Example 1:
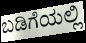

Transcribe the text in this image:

ಬಡಿಗೆಯಲ್ಲಿ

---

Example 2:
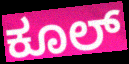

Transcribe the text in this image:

ಕೂಲ್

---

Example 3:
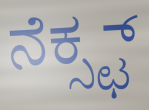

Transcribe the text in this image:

ನೆಕ್ಸ್ಟ್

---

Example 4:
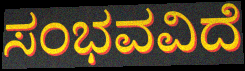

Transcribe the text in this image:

ಸಂಭವವಿದೆ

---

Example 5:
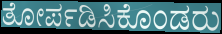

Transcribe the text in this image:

ತೋರ್ಪಡಿಸಿಕೊಂಡರು